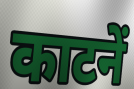
काटनें